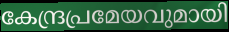
കേന്ദ്രപ്രമേയവുമായി